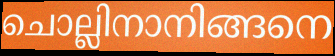
ചൊല്ലിനാനിങ്ങനെ